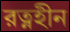
রত্নহীন